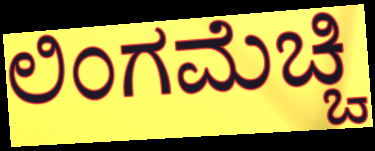
ಲಿಂಗಮೆಚ್ಚಿ